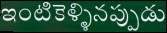
ఇంటికెళ్ళినప్పుడు